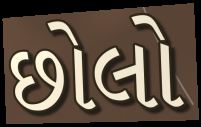
છોલો